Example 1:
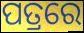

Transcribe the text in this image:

ପତ୍ରରେ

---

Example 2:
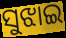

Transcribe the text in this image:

ସୁଝାଇ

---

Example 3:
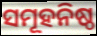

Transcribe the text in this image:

ସମୂହନିଷ୍ଠ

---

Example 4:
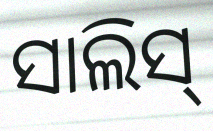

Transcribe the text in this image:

ସାଲିସ୍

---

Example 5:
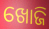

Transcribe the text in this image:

ଖୋଜି